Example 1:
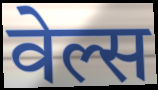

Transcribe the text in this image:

वेल्स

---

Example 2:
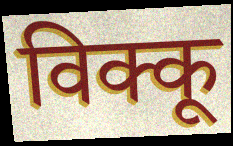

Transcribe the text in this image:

विक्कू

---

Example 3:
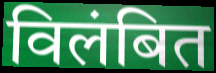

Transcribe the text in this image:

विलंबित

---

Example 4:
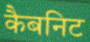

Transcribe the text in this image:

कैबनिट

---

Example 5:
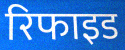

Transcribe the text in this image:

रिफाइड